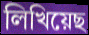
লিখিয়েছ